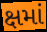
ક્ષમાં